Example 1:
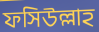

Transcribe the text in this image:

ফসিউল্লাহ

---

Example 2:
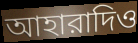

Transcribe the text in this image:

আহারাদিও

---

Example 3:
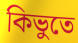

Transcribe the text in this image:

কিভুতে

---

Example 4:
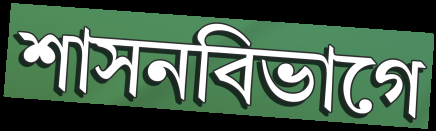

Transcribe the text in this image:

শাসনবিভাগে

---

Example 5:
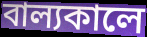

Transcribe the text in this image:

বাল্যকালে